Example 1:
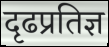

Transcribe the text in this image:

दृढप्रतिज्ञ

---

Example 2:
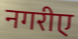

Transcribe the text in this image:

नगरीए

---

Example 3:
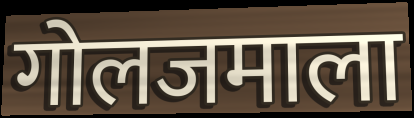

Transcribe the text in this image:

गोलजमाला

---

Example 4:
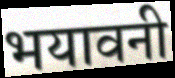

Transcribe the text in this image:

भयावनी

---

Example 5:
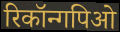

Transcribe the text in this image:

रिकॉन्गपिओ